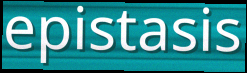
epistasis